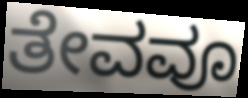
ತೇವವೂ